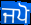
ਜਪੋ